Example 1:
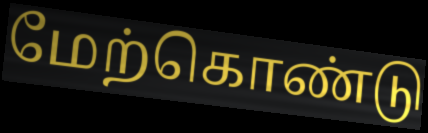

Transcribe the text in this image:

மேற்கொண்டு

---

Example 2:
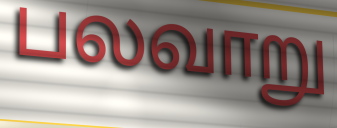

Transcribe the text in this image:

பலவாறு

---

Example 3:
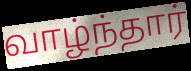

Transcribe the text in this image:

வாழ்ந்தார்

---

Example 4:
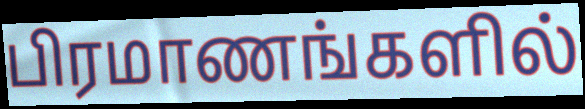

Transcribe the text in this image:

பிரமாணங்களில்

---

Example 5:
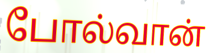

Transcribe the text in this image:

போல்வான்